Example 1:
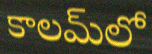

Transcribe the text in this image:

కాలమ్‍లో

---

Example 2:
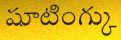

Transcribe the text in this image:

షూటింగ్కు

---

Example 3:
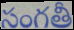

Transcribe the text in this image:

సంగతీ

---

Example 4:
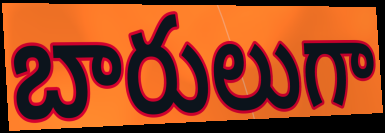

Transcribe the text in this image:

బారులుగా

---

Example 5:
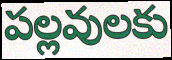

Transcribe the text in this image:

పల్లవులకు